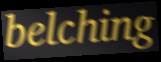
belching